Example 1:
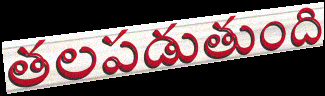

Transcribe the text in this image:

తలపడుతుంది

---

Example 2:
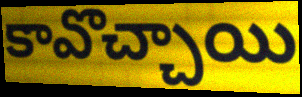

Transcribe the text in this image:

కావొచ్చాయి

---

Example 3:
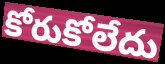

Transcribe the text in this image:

కోరుకోలేదు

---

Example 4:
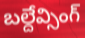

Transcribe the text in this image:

బల్దేవ్సింగ్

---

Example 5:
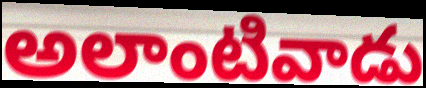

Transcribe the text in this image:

అలాంటివాడు